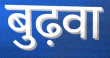
बुढ़वा